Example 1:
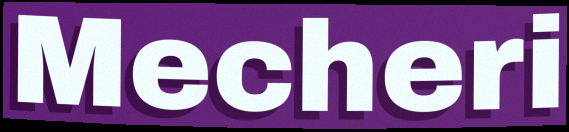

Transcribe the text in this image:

Mecheri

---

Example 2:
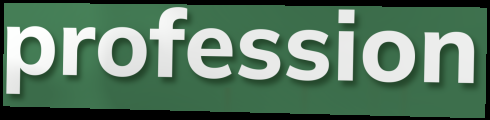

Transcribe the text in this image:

profession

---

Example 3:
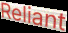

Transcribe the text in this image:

Reliant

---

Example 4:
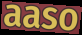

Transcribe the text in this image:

aaso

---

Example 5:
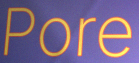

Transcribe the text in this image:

Pore